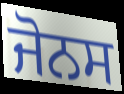
ਜੋਨਸ